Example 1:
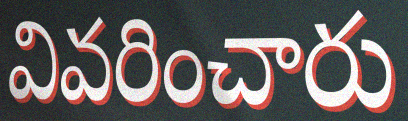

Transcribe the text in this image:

వివరించారు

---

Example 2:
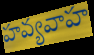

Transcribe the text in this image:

హవ్యవాహ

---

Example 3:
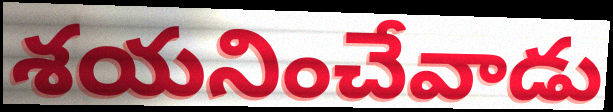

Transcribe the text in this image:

శయనించేవాడు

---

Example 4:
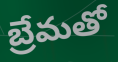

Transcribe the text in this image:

బ్రేమతో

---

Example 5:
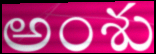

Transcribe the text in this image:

అంశు